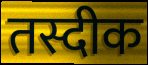
तस्दीक